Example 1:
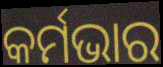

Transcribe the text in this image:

କର୍ମଭାର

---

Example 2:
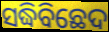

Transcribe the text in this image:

ସଦ୍ଧିବିଛେଦ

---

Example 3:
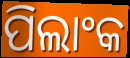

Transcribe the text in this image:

ପିଲାଂକ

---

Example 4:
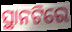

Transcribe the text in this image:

ସ୍ଥାନଟିରେ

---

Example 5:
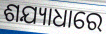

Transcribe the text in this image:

ଶଯ୍ୟାଧାରେ